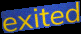
exited